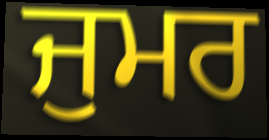
ਜੁਮਰ